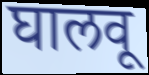
घालवू